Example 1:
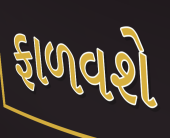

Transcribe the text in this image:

ફાળવશે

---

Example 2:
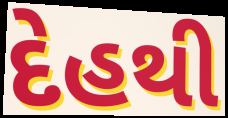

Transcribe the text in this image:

દેહથી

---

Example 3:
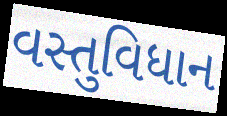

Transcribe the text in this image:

વસ્તુવિધાન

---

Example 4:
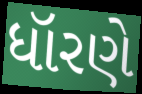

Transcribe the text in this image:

ધૉરણે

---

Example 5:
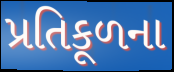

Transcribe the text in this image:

પ્રતિકૂળના